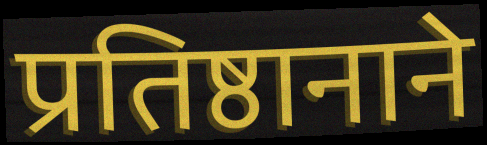
प्रतिष्ठानाने